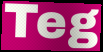
Teg